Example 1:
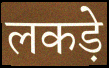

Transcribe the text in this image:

लकड़े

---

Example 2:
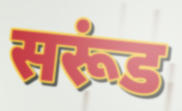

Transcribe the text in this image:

सरूंड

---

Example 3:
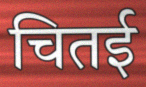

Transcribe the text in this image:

चितई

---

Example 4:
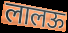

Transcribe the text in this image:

लालऊ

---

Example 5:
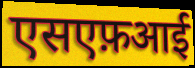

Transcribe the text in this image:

एसएफ़आई